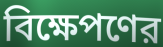
বিক্ষেপণের